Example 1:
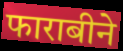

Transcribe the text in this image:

फाराबीने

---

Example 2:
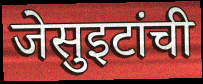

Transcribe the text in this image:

जेसुइटांची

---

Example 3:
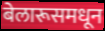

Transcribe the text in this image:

बेलारूसमधून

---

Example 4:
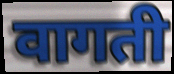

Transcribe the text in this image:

वागती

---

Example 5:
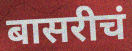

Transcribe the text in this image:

बासरीचं